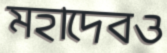
মহাদেবও